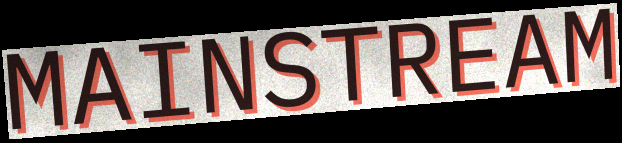
MAINSTREAM